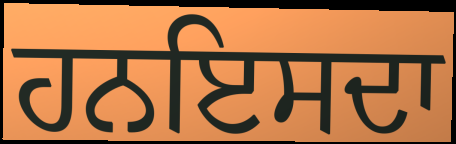
ਹਨਇਸਦਾ